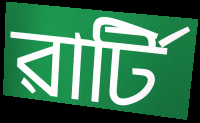
ৱাৰ্টি